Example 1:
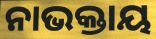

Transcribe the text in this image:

ନାଭକ୍ତାୟ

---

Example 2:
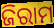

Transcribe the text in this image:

ଜିରାମ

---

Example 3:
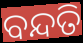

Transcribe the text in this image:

ବନ୍ଦତି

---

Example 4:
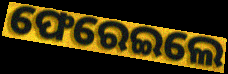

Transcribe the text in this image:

ଫେରେଇଲେ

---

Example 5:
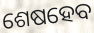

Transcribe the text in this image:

ଶେଷହେବ